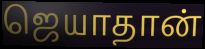
ஜெயாதான்